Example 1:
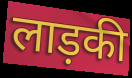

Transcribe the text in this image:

लाड़की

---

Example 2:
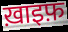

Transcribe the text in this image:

ख़ाइफ़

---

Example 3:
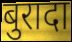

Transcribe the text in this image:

बुरादा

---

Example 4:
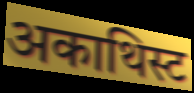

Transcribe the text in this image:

अकाथिस्ट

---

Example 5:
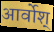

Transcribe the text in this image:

आर्वोश्